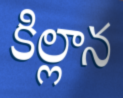
కిల్లాన